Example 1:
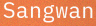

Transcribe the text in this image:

Sangwan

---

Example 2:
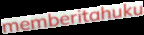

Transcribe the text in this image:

memberitahuku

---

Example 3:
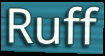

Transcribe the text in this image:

Ruff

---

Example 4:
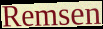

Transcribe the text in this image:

Remsen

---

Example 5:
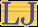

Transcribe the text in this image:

LJ